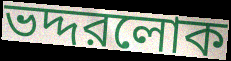
ভদ্দরলোক